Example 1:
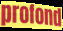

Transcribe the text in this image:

profond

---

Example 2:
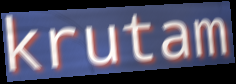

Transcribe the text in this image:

krutam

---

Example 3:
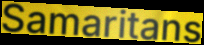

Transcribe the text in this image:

Samaritans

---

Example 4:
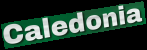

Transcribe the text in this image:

Caledonia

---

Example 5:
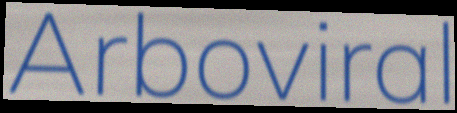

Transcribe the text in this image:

Arboviral